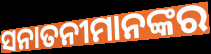
ସନାତନୀମାନଙ୍କର